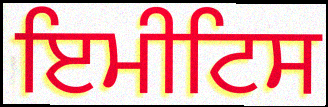
ਇਮੀਟਿਸ